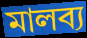
মালব্য